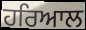
ਹਰਿਆਲ